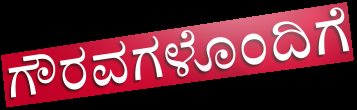
ಗೌರವಗಳೊಂದಿಗೆ